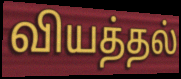
வியத்தல்